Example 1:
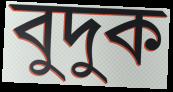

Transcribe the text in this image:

বুদুক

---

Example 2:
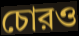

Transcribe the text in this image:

চোরও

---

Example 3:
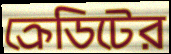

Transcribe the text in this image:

ক্রেডিটের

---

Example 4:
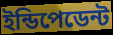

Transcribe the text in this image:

ইন্ডিপেডেন্ট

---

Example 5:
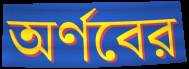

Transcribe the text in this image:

অর্ণবের